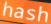
hash